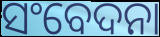
ସଂବେଦନା